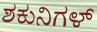
ಶಕುನಿಗಳ್